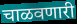
चाळवणारी